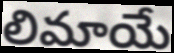
లిమాయే